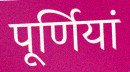
पूर्णियां